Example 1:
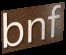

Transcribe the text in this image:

bnf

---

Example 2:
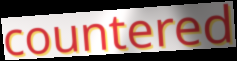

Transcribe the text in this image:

countered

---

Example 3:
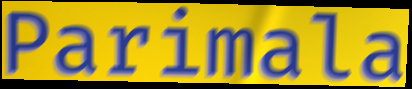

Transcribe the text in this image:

Parimala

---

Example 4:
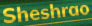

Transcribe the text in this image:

Sheshrao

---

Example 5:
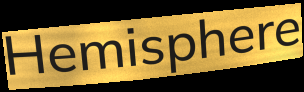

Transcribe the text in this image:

Hemisphere